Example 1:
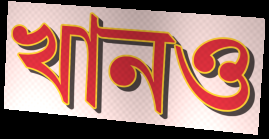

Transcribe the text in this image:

খানও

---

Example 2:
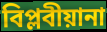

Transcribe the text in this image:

বিপ্লবীয়ানা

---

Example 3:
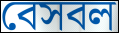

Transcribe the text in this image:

বেসবল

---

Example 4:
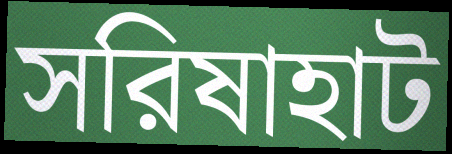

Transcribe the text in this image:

সরিষাহাট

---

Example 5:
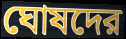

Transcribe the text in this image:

ঘোষদের